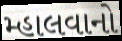
મ્હાલવાનો